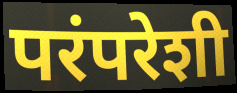
परंपरेशी